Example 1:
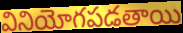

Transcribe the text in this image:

వినియోగపడతాయి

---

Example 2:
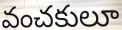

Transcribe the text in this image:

వంచకులూ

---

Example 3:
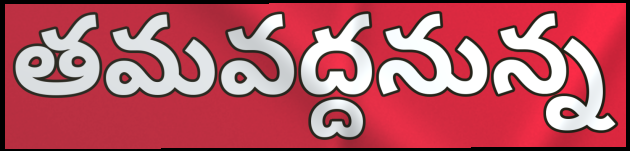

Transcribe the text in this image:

తమవద్దనున్న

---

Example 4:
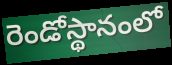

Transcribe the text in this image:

రెండోస్థానంలో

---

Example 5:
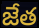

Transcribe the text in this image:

జేత